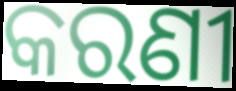
କରଣୀ